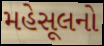
મહેસૂલનો